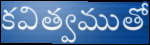
కవిత్వముతో